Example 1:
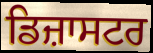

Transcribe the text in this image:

ਡਿਜ਼ਾਸਟਰ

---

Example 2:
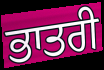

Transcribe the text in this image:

ਭਾਤਰੀ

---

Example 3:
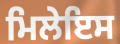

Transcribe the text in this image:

ਮਿਲੇਇਸ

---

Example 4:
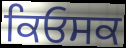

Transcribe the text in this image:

ਕਿਓਸਕ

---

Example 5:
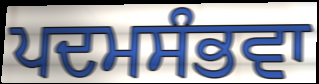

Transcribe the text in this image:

ਪਦਮਸੰਭਵਾ